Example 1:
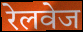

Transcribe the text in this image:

रेलवेज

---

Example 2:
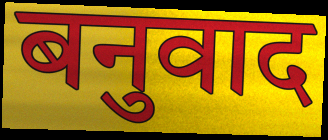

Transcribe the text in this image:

बनुवाद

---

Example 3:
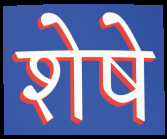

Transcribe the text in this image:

शेषे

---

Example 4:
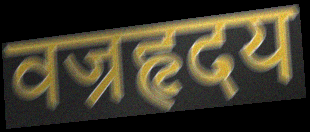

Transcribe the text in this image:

वज्रहृदय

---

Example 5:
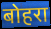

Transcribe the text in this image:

बोहरा